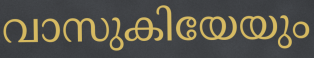
വാസുകിയേയും